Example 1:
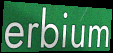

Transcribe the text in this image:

erbium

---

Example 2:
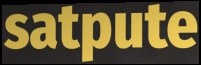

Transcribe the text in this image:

satpute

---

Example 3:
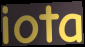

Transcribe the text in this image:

iota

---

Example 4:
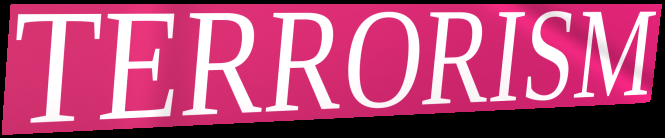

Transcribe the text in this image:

TERRORISM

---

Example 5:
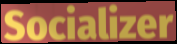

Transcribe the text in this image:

Socializer